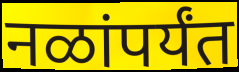
नळांपर्यंत